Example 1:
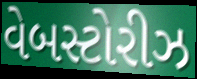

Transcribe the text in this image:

વેબસ્ટોરીઝ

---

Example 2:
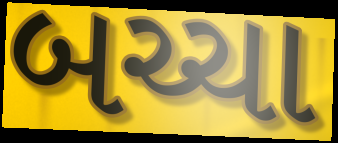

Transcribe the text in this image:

બચ્ચા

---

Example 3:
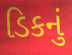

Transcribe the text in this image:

ડિકનું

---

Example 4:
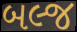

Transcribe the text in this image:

બલ્જ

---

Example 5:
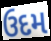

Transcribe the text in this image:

ઉદમ